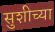
सुशीच्या